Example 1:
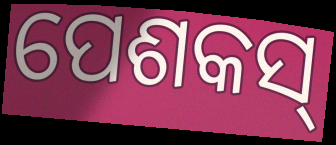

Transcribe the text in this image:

ପେଶକସ୍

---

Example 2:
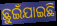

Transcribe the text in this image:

ଛୁଇଁଯାଇଛି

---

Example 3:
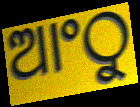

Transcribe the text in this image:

ଆଂଠୁ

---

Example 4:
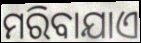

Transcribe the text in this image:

ମରିବାଯାଏ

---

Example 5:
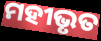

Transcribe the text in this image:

ମହୀଭୃତ